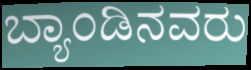
ಬ್ಯಾಂಡಿನವರು